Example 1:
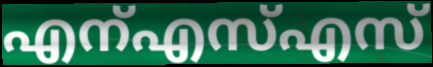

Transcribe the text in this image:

എന്എസ്എസ്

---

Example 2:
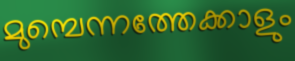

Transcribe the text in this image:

മുമ്പെന്നത്തേക്കാളും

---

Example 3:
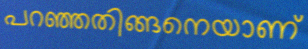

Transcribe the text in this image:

പറഞ്ഞതിങ്ങനെയാണ്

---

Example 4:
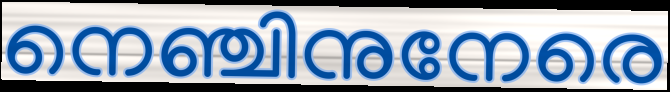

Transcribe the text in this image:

നെഞ്ചിനുനേരെ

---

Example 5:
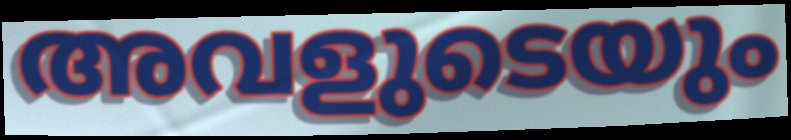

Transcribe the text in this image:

അവളുടെയും